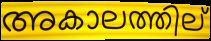
അകാലത്തില്